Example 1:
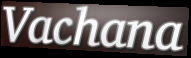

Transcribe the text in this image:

Vachana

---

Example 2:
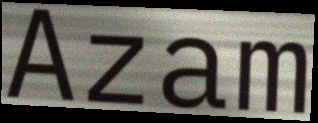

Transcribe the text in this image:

Azam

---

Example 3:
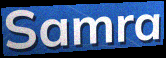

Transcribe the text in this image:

Samra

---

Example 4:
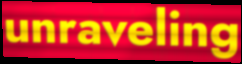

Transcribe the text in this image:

unraveling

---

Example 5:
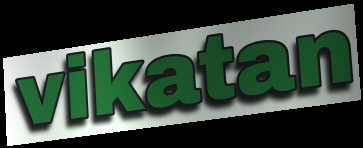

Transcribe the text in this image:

vikatan